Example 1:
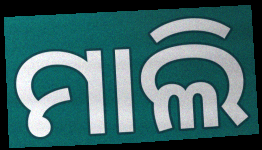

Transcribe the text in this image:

ମାଲି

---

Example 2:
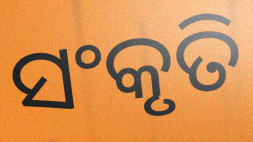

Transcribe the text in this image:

ସଂକୃତି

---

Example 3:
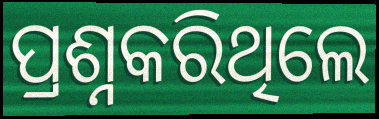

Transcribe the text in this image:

ପ୍ରଶ୍ନକରିଥିଲେ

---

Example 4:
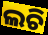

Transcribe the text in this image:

ଲଚି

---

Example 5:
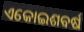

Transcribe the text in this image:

ଏକୋଇଶବର୍ଷ